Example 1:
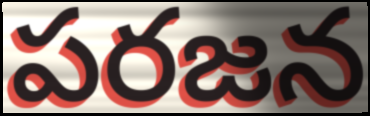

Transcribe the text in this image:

పరజన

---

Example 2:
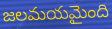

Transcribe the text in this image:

జలమయమైంది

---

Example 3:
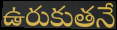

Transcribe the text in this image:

ఉరుకుతనే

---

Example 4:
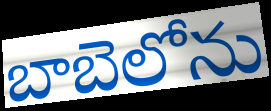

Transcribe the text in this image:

బాబెలోను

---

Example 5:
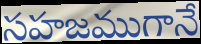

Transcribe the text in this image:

సహజముగానే